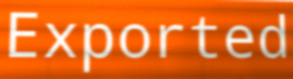
Exported